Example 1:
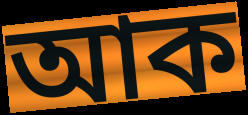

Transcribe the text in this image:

আক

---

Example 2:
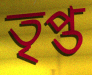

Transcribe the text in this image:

তৃপ্ত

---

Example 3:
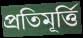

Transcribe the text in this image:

প্ৰতিমূৰ্ত্তি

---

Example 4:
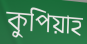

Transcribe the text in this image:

কুপিয়াহ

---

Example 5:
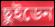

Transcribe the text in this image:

ছুইডেন